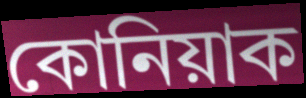
কোনিয়াক